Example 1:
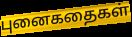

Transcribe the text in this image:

புனைகதைகள்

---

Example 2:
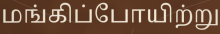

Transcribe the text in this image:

மங்கிப்போயிற்று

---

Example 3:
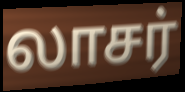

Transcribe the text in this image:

லாசர்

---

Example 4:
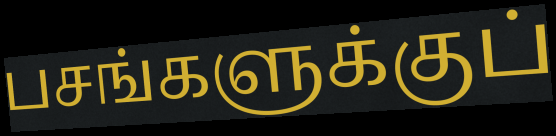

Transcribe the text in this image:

பசங்களுக்குப்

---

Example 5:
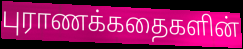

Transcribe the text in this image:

புராணக்கதைகளின்